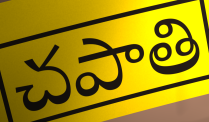
చపాతి